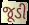
જૂડી